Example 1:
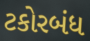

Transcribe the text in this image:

ટકોરબંધ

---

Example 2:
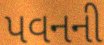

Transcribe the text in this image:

પવનની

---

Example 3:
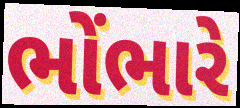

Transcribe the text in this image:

ભોંભારે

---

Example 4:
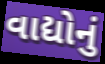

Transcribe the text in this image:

વાદ્યોનું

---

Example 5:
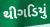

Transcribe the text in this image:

થીગડિયું